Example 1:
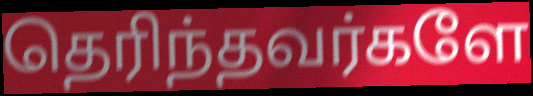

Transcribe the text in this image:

தெரிந்தவர்களே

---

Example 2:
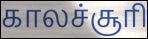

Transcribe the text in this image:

காலச்சூரி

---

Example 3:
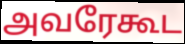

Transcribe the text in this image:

அவரேகூட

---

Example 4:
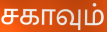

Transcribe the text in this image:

சகாவும்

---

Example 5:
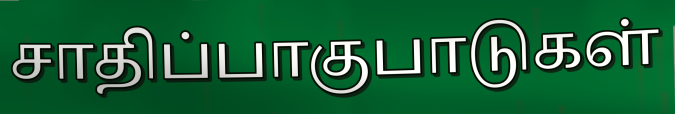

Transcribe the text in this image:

சாதிப்பாகுபாடுகள்